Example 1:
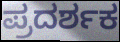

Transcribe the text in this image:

ಪ್ರದರ್ಶಕ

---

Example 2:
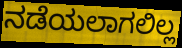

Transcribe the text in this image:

ನಡೆಯಲಾಗಲಿಲ್ಲ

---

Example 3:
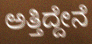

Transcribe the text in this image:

ಅತ್ತಿದ್ದೇನೆ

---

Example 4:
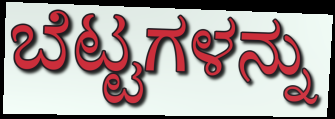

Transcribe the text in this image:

ಬೆಟ್ಟಗಳನ್ನು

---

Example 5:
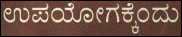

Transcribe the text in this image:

ಉಪಯೋಗಕ್ಕೆಂದು